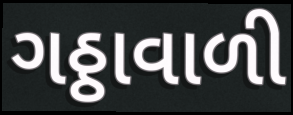
ગઠ્ઠાવાળી